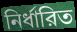
নির্ধারিত